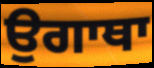
ਉਗਾਥਾ